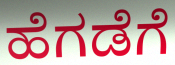
ಹೆಗಡೆಗೆ